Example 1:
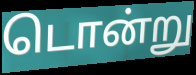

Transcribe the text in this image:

டொன்று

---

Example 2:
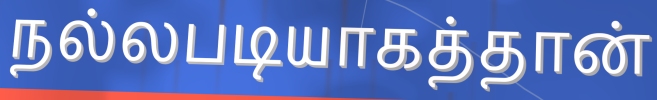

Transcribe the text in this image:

நல்லபடியாகத்தான்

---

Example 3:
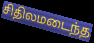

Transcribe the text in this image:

சிதிலமடைந்த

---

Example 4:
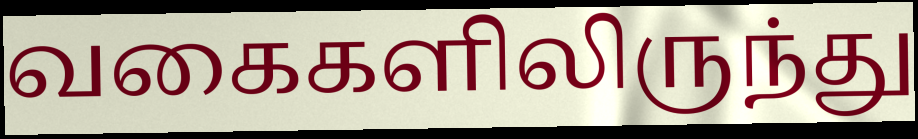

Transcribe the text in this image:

வகைகளிலிருந்து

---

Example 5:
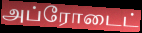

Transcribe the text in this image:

அப்ரோடைட்